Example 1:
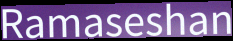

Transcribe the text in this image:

Ramaseshan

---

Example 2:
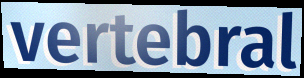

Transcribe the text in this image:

vertebral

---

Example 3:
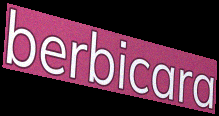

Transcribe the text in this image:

berbicara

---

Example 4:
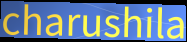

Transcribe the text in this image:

charushila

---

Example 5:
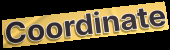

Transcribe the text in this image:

Coordinate